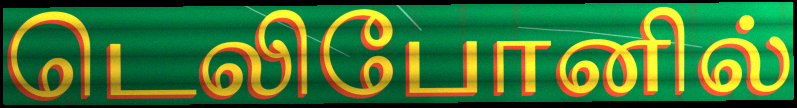
டெலிபோனில்